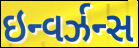
ઇન્વર્ઝન્સ